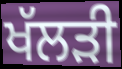
ਖੱਲੜੀ